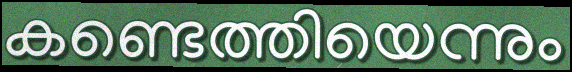
കണ്ടെത്തിയെന്നും